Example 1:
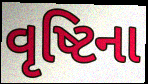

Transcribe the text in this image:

વૃષ્ટિના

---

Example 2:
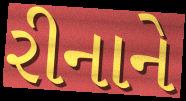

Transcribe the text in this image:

રીનાને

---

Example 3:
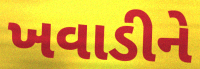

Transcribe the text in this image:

ખવાડીને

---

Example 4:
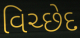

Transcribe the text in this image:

વિચ્છેદ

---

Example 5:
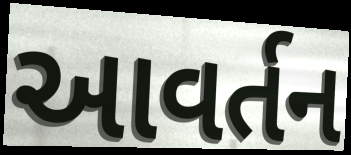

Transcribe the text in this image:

આવર્તન